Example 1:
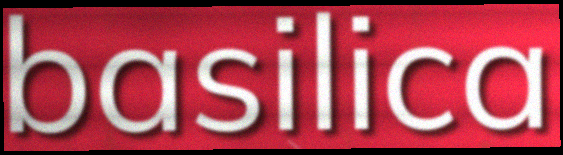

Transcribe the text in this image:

basilica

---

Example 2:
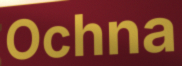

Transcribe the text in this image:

Ochna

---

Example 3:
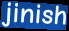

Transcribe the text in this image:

jinish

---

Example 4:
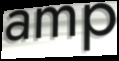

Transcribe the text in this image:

amp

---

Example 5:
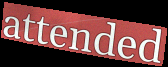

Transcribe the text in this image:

attended